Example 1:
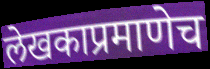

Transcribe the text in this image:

लेखकाप्रमाणेच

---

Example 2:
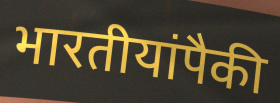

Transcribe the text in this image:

भारतीयांपैकी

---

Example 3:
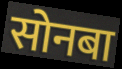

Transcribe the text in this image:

सोनबा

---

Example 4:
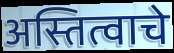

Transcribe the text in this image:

अस्तित्वाचे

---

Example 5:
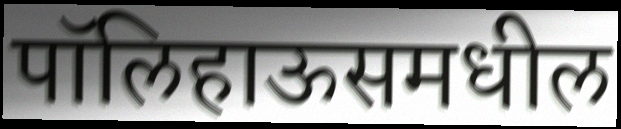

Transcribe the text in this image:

पॉलिहाऊसमधील